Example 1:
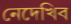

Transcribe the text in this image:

নেদেখিব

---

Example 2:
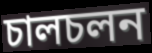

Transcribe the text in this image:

চালচলন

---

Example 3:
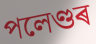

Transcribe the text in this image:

পলেণ্ডৰ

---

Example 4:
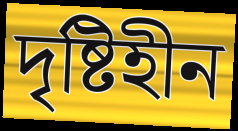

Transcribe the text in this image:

দৃষ্টিহীন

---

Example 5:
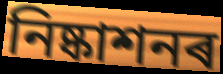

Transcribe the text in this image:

নিষ্কাশনৰ